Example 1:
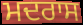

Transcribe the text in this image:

ਮਦਰਾਸ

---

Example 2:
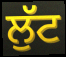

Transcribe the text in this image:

ਲੁੱਟ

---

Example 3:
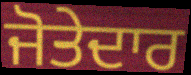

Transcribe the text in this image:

ਜੋਤੇਦਾਰ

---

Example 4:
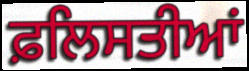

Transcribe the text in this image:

ਫ਼ਲਿਸਤੀਆਂ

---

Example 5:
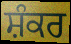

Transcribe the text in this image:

ਸ਼ੰਕਰ